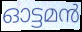
ഓട്ടമൻ